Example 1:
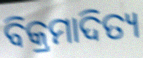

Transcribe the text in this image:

ବିକ୍ରମାଦିତ୍ୟ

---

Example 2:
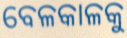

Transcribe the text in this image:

ବେଳକାଳକୁ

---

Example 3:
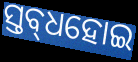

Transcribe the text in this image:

ସ୍ତବ୍‌ଧହୋଇ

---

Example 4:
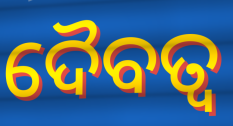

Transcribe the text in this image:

ଦୈବତ୍ଵ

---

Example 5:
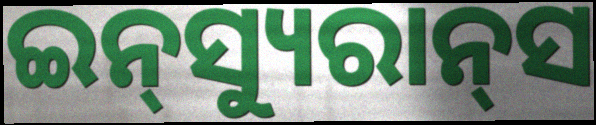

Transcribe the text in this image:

ଇନ୍‌ସ୍ୟୁରାନ୍‌ସ